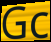
Gc